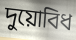
দুয়োবিধ